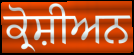
ਕ੍ਰੋਸ਼ੀਅਨ